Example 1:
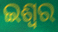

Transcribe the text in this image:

ଇଶ୍ଵର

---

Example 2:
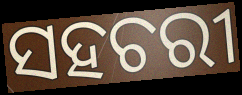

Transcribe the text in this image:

ସହଚରୀ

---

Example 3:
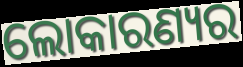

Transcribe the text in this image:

ଲୋକାରଣ୍ୟର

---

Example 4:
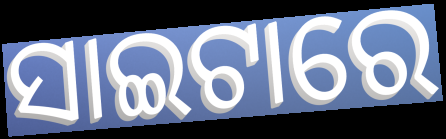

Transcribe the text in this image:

ସାଇଟାରେ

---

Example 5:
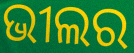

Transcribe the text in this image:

ଭୀଲର